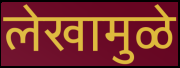
लेखामुळे